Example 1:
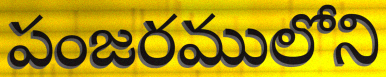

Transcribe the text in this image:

పంజరములోని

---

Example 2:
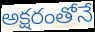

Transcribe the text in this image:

అక్షరంతోనే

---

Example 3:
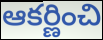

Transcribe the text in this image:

ఆకర్ణించి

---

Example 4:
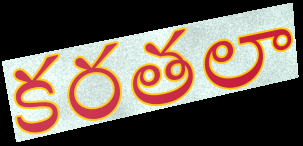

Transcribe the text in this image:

కరతలా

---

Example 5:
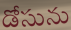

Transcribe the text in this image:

డోసును